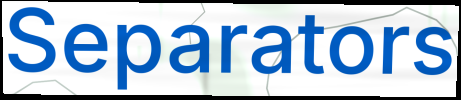
Separators